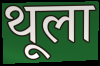
थूला